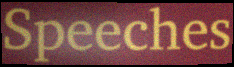
Speeches